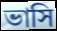
ভাসি